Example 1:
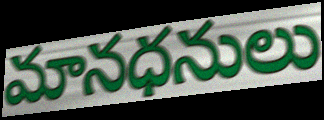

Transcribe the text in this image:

మానధనులు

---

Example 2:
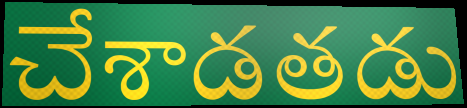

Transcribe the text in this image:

చేశాడతడు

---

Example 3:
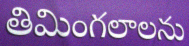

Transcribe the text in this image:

తిమింగలాలను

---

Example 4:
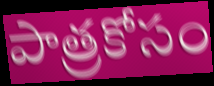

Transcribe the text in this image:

పాత్రకోసం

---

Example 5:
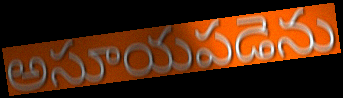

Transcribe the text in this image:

అసూయపడెను